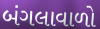
બંગલાવાળો